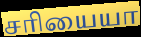
சரியையா